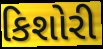
કિશોરી